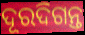
ଦୂରଦିଗନ୍ତ